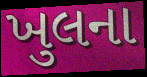
ખુલના